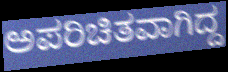
ಅಪರಿಚಿತವಾಗಿದ್ದ